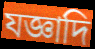
যজ্ঞাদি